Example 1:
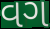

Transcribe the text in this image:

વગ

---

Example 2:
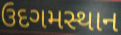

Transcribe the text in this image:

ઉદગમસ્થાન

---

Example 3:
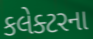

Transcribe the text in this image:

કલેક્ટરના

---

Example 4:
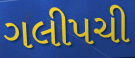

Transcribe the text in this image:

ગલીપચી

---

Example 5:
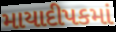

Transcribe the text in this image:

માયાદીપકમાં